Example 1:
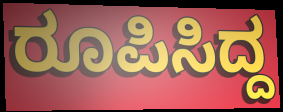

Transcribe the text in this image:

ರೂಪಿಸಿದ್ದ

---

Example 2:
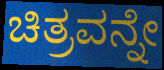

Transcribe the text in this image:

ಚಿತ್ರವನ್ನೇ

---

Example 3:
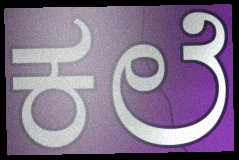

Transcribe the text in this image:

ಕಲೆ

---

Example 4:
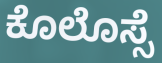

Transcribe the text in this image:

ಕೊಲೊಸ್ಸೆ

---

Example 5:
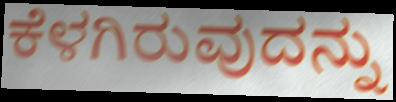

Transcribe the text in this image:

ಕೆಳಗಿರುವುದನ್ನು